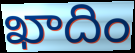
ఖాదిం